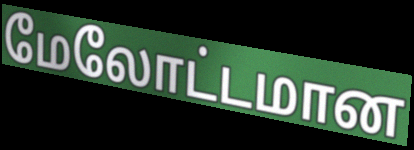
மேலோட்டமான